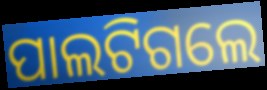
ପାଲଟିଗଲେ